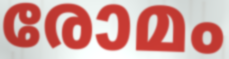
രോമം